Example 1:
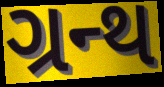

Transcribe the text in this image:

ગ્રન્થ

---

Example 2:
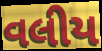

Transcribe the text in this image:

વલીય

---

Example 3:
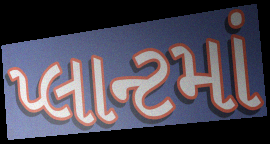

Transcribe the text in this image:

પ્લાન્ટમાં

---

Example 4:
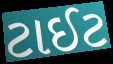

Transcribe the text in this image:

ટાઈટ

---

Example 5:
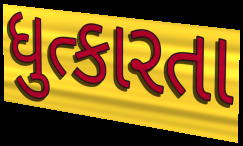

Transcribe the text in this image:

ધુત્કારતા